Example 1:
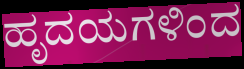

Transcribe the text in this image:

ಹೃದಯಗಳಿಂದ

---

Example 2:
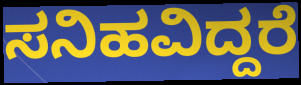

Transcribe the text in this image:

ಸನಿಹವಿದ್ದರೆ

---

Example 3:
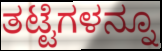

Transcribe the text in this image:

ತಟ್ಟೆಗಳನ್ನೂ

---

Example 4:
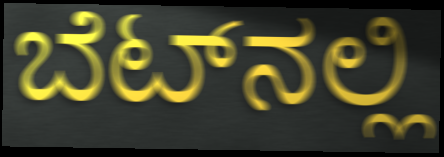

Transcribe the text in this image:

ಬೆಟ್‌ನಲ್ಲಿ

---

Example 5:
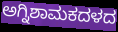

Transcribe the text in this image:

ಅಗ್ನಿಶಾಮಕದಳದ